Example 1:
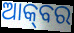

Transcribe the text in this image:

ଆକ୍‌ବର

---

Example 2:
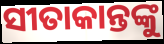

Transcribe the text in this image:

ସୀତାକାନ୍ତଙ୍କୁ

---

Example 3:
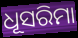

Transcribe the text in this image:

ଧୂସରିମା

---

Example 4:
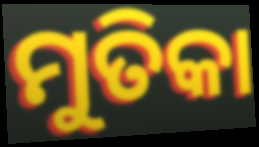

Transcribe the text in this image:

ମୁତିକା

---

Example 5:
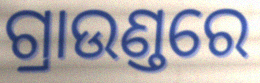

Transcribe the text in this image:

ଗ୍ରାଉଣ୍ଡରେ